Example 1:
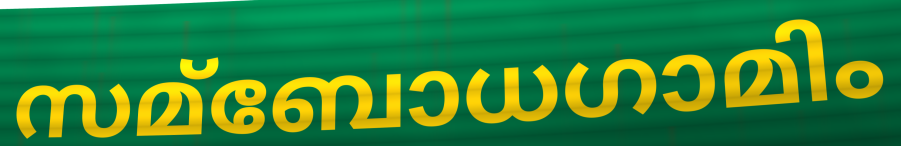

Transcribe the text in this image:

സമ്ബോധഗാമിം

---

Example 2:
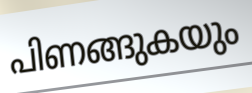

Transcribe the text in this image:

പിണങ്ങുകയും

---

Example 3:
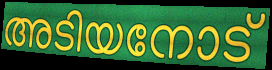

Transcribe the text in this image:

അടിയനോട്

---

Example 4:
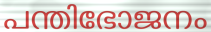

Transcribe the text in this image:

പന്തിഭോജനം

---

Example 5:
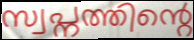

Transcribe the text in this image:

സ്വപ്നത്തിന്റെ